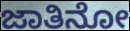
ಜಾತಿನೋ